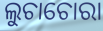
ଲୁଚାଚୋରା